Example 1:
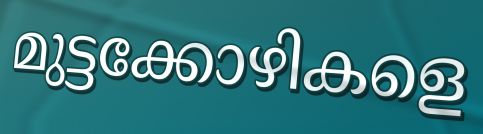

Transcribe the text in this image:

മുട്ടക്കോഴികളെ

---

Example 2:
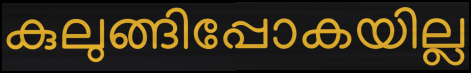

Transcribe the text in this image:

കുലുങ്ങിപ്പോകയില്ല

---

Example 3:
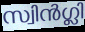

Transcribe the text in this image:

സ്വിൻഗ്ലി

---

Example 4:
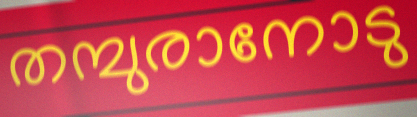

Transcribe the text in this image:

തമ്പുരാനോടു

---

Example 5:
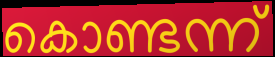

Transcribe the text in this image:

കൊണ്ടന്ന്